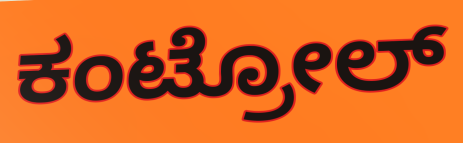
ಕಂಟ್ರೋಲ್